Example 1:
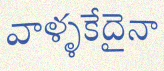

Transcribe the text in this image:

వాళ్ళకేదైనా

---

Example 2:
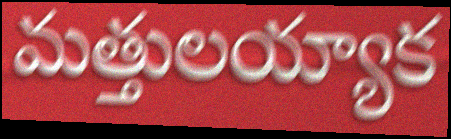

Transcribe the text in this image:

మత్తులయ్యాక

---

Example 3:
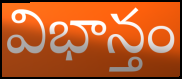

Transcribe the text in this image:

విభాన్తం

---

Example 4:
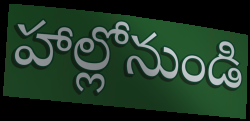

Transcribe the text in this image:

హాల్లోనుండి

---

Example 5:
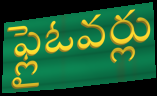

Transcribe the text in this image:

ఫ్లైఓవర్లు